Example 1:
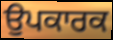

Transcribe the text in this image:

ਉਪਕਾਰਕ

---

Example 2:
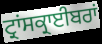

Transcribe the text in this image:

ਟ੍ਰਾਂਸਕ੍ਰਾਈਬਰਾਂ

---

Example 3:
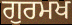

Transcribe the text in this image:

ਗੁਰਮਖ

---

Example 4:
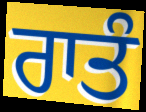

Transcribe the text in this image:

ਰਾਤੰ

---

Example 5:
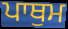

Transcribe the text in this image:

ਪਾਥੁਮ